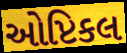
ઓપ્ટિકલ